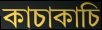
কাচাকাচি